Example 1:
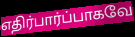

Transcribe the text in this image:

எதிர்பார்ப்பாகவே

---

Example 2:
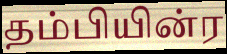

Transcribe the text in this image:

தம்பியின்ர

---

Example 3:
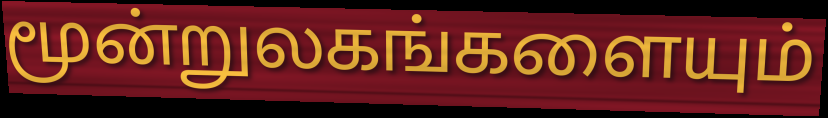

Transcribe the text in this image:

மூன்றுலகங்களையும்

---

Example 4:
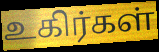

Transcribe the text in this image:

உகிர்கள்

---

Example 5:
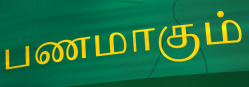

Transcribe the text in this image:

பணமாகும்